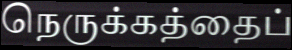
நெருக்கத்தைப்